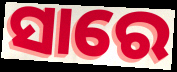
ସାରେ